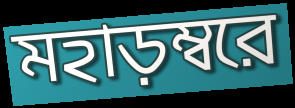
মহাড়ম্বরে